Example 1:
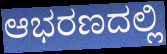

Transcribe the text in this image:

ಆಭರಣದಲ್ಲಿ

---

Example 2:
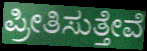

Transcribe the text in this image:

ಪ್ರೀತಿಸುತ್ತೇವೆ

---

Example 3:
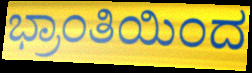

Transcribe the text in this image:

ಭ್ರಾಂತಿಯಿಂದ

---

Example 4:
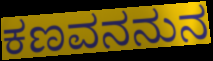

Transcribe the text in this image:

ಕಣವನನುನ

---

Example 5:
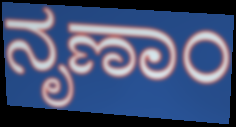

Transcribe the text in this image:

ನೃಣಾಂ